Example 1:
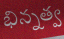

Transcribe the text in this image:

భిన్నత్వ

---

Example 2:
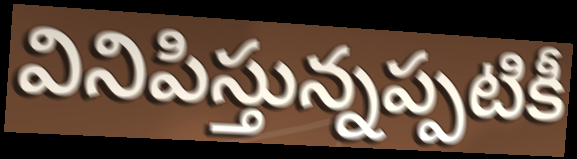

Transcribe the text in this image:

వినిపిస్తున్నప్పటికీ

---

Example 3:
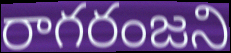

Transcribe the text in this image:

రాగరంజని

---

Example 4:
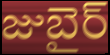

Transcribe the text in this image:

జుబైర్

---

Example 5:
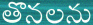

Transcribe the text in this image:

తొనలను